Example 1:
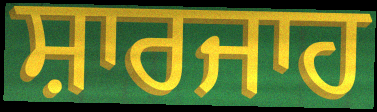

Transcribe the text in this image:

ਸ਼ਾਰਜਾਹ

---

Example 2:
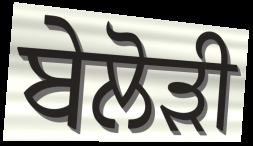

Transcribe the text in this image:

ਬੇਲੋੜੀ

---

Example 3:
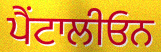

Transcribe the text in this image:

ਪੈਂਟਾਲੀਓਨ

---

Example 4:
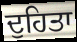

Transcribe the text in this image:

ਦੁਹਿਤਾ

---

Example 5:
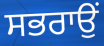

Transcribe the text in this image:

ਸਭਰਾਉਂ